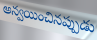
అన్వయించినప్పుడు